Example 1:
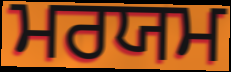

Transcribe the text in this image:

ਮਰਯਮ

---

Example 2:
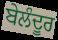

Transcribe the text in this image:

ਬੇਲੰਦੂਰ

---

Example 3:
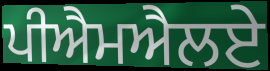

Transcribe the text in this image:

ਪੀਐਮਐਲਏ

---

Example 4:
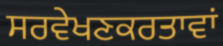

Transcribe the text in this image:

ਸਰਵੇਖਣਕਰਤਾਵਾਂ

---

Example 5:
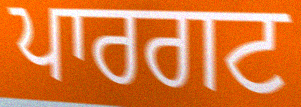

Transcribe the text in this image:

ਪਾਰਗਟ